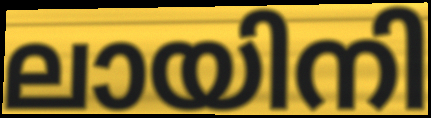
ലായിനി